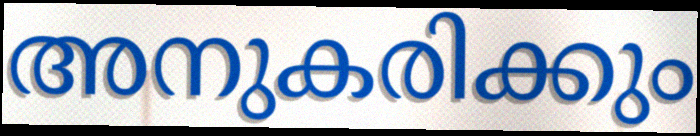
അനുകരിക്കും